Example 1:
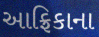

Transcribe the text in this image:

આફ્રિકાના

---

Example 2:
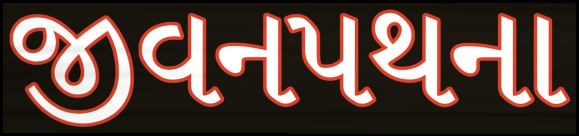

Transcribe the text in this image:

જીવનપથના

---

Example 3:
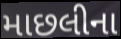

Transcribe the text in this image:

માછલીના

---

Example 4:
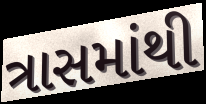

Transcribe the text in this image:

ત્રાસમાંથી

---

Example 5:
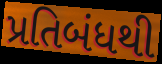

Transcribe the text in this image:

પ્રતિબંધથી